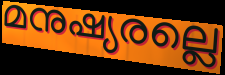
മനുഷ്യരല്ലെ